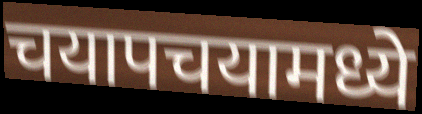
चयापचयामध्ये